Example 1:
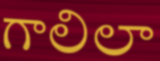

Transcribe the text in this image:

గాలిలా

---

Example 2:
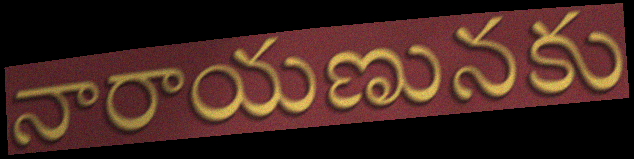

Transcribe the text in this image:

నారాయణునకు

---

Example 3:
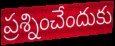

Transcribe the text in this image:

ప్రశ్నించేందుకు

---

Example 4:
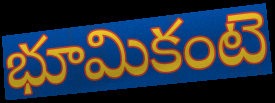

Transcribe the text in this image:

భూమికంటె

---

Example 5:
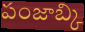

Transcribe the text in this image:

పంజాబ్కి